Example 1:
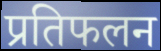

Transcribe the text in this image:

प्रतिफलन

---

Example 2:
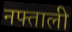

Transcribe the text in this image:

नफ्ताली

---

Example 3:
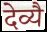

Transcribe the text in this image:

देव्यै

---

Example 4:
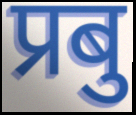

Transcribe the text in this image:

प्रबु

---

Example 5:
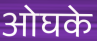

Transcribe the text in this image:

ओघके